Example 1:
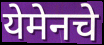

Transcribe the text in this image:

येमेनचे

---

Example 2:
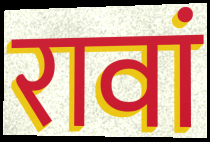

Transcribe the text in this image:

रावां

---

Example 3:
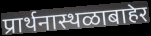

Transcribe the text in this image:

प्रार्थनास्थळाबाहेर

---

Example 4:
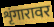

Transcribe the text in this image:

शृंगारावर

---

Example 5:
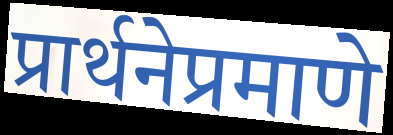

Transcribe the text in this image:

प्रार्थनेप्रमाणे